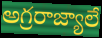
అగ్రరాజ్యాలే